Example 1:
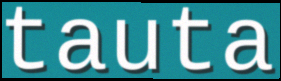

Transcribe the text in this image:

tauta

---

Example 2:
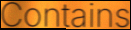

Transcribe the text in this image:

Contains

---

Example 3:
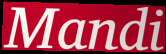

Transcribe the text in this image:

Mandi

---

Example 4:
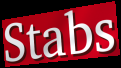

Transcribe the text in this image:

Stabs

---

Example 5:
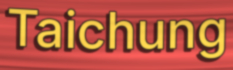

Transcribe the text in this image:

Taichung